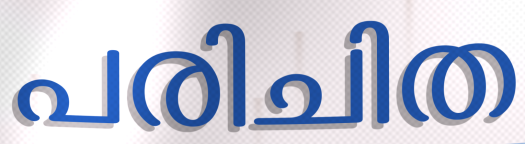
പരിചിത